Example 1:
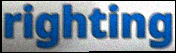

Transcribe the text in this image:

righting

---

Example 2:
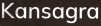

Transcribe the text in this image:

Kansagra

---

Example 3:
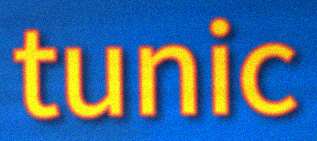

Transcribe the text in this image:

tunic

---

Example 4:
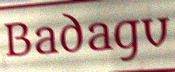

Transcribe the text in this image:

Badagu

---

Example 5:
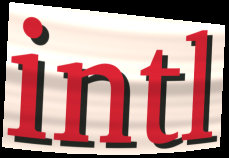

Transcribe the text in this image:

intl